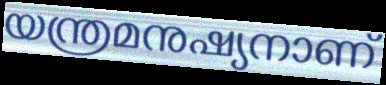
യന്ത്രമനുഷ്യനാണ്